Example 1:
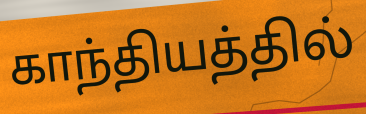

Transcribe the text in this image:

காந்தியத்தில்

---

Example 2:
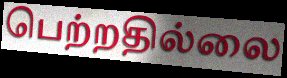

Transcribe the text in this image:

பெற்றதில்லை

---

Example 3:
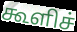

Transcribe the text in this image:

கூளிச்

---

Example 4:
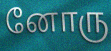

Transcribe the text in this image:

னோரு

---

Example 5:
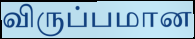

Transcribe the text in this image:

விருப்பமான